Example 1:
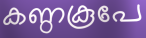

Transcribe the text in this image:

കണ്ഠകൂപേ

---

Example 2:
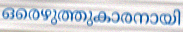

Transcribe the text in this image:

ഒരെഴുത്തുകാരനായി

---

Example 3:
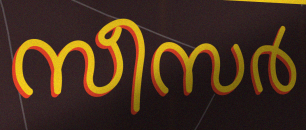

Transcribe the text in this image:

സീസർ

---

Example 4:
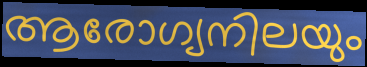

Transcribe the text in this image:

ആരോഗ്യനിലയും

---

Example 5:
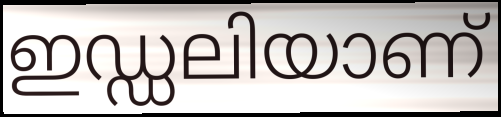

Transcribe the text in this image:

ഇഡ്ഡലിയാണ്